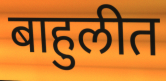
बाहुलीत